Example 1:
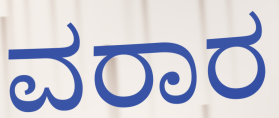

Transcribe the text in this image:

ವರಾರ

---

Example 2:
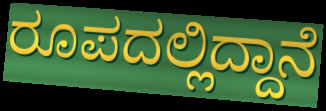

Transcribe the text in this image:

ರೂಪದಲ್ಲಿದ್ದಾನೆ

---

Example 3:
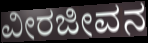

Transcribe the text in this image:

ವೀರಜೀವನ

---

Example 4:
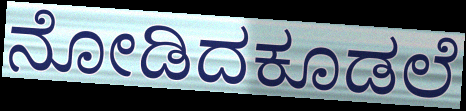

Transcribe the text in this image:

ನೋಡಿದಕೂಡಲೆ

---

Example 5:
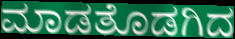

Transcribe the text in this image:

ಮಾಡತೊಡಗಿದ